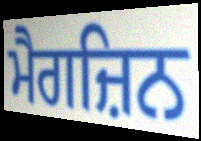
ਮੈਗਜ਼ਿਨ